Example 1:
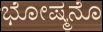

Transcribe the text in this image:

ಭೋಷ್ಮನೊ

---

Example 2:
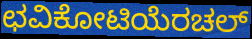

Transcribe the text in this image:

ಛವಿಕೋಟಿಯೆರಚಲ್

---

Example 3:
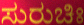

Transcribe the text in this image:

ಸುರುಚಿಃ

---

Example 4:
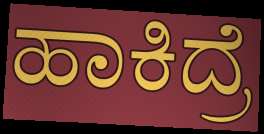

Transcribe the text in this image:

ಹಾಕಿದ್ರೆ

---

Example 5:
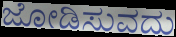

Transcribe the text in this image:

ಜೋಡಿಸುವದು